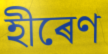
হীৰেণ